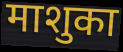
माशुका